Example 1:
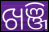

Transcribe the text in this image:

ଖଞ୍ଜି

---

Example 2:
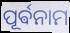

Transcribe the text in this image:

ପୂର୍ଵନାମ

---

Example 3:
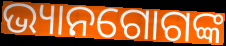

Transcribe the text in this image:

ଭ୍ୟାନଗୋଗଙ୍କ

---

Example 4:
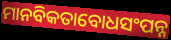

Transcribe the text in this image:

ମାନବିକତାବୋଧସଂପନ୍ନ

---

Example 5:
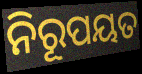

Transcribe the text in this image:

ନିରୂପୟତ